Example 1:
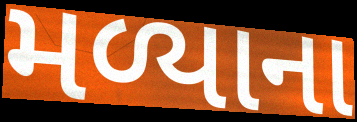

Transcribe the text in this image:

મળ્યાના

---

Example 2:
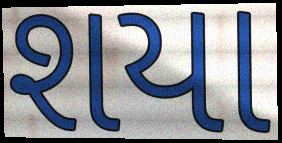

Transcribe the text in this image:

શયા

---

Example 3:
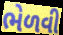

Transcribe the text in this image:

ભેળવી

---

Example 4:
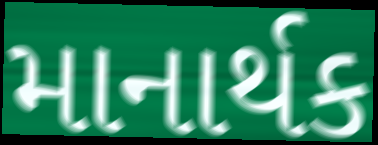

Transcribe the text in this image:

માનાર્થક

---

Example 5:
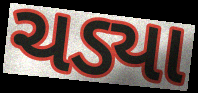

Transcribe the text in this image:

ચડ્યા